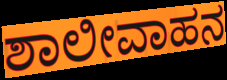
ಶಾಲೀವಾಹನ